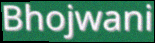
Bhojwani